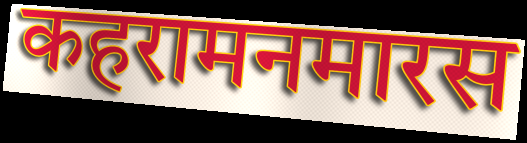
कहरामनमारस